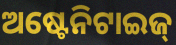
ଅଷ୍ଟେନିଟାଇଜ୍